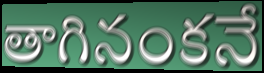
తాగినంకనే